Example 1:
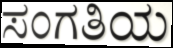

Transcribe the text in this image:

ಸಂಗತಿಯ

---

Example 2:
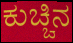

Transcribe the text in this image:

ಕುಚ್ಚಿನ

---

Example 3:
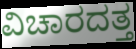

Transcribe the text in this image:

ವಿಚಾರದತ್ತ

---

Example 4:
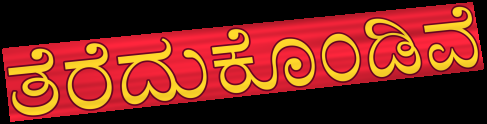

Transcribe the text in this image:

ತೆರೆದುಕೊಂಡಿವೆ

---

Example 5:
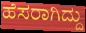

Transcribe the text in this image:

ಹೆಸರಾಗಿದ್ದು